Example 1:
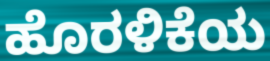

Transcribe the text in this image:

ಹೊರಳಿಕೆಯ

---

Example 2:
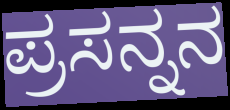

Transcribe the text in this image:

ಪ್ರಸನ್ನನ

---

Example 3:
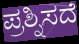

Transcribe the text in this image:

ಪ್ರಶ್ನಿಸದೆ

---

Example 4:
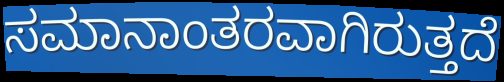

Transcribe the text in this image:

ಸಮಾನಾಂತರವಾಗಿರುತ್ತದೆ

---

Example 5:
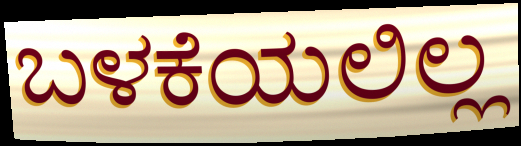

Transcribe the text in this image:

ಬಳಕೆಯಲಿಲ್ಲ